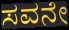
ಸವನೇ